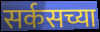
सर्कसच्या